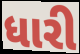
ધારી